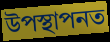
উপস্থাপনত